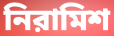
নিরামিশ